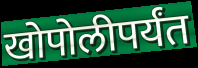
खोपोलीपर्यंत